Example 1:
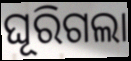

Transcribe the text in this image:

ଘୂରିଗଲା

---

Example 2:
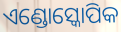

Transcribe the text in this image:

ଏଣ୍ଡୋସ୍କୋପିକ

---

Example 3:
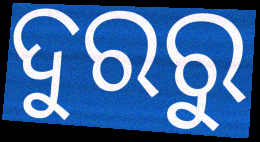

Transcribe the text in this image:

ଦୁରରୁ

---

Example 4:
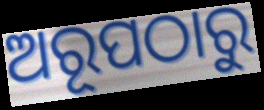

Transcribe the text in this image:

ଅରୂପଠାରୁ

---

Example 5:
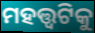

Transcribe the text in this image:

ମହତ୍ତ୍ୱଟିକୁ